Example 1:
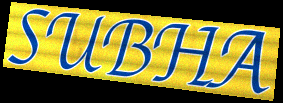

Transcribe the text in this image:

SUBHA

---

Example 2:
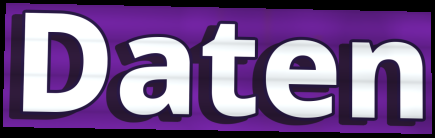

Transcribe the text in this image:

Daten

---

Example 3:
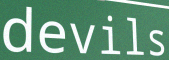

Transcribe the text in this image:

devils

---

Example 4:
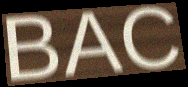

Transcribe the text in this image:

BAC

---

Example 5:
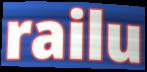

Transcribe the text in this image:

railu